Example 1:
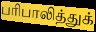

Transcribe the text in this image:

பரிபாலித்துக்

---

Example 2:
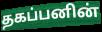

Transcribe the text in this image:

தகப்பனின்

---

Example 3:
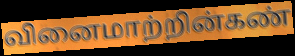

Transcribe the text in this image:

வினைமாற்றின்கண்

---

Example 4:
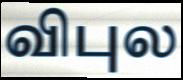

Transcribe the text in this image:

விபுல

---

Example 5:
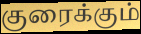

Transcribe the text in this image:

குரைக்கும்